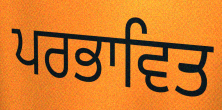
ਪਰਭਾਵਿਤ